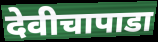
देवीचापाडा